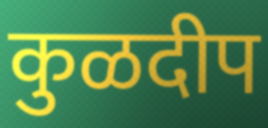
कुळदीप